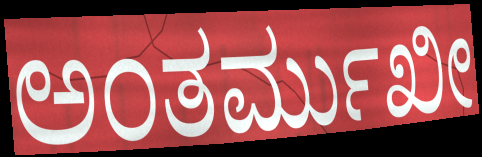
ಅಂತರ್ಮುಖೀ